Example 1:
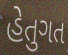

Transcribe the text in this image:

હેતુગત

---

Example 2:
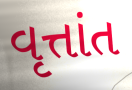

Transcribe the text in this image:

વૃત્તાંત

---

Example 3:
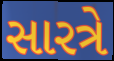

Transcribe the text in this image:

સારત્રે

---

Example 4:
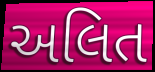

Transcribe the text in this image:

અલિત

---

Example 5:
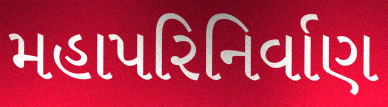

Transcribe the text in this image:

મહાપરિનિર્વાણ